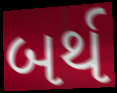
બર્થ